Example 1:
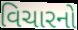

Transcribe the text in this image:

વિચારનો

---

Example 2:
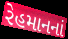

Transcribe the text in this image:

રેહમાનનાં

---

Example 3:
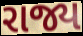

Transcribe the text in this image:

રાજ્ય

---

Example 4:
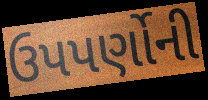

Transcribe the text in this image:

ઉપપર્ણોની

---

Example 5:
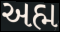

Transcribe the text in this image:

અહ્મ